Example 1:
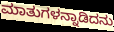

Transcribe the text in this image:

ಮಾತುಗಳನ್ನಾಡಿದನು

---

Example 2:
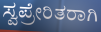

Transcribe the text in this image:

ಸ್ವಪ್ರೇರಿತರಾಗಿ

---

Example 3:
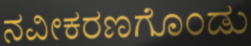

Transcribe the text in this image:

ನವೀಕರಣಗೊಂಡು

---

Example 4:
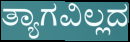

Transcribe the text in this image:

ತ್ಯಾಗವಿಲ್ಲದ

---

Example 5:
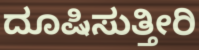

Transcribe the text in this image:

ದೂಷಿಸುತ್ತೀರಿ